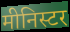
मीनिस्टर